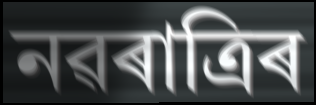
নৱৰাত্ৰিৰ